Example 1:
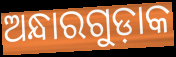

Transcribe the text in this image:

ଅନ୍ଧାରଗୁଡ଼ାକ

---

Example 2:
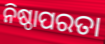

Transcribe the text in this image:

ନିଷ୍ଠାପରତା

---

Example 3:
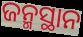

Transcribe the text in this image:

ଜନ୍ମସ୍ଥାନ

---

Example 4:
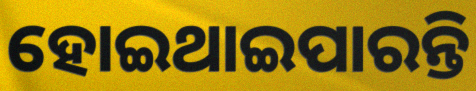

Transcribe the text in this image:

ହୋଇଥାଇପାରନ୍ତି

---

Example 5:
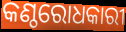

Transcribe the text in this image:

କଣ୍ଠରୋଧକାରୀ